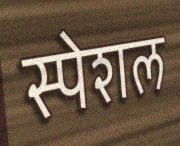
स्पेशल